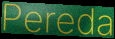
Pereda